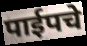
पाईपचे